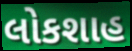
લોકશાહ